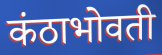
कंठाभोवती